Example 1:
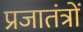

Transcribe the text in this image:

प्रजातंत्रों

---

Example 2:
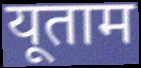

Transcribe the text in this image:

यूताम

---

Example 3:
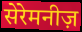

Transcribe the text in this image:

सेरेमनीज़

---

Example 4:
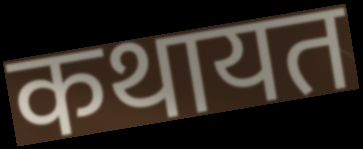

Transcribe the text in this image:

कथायत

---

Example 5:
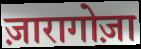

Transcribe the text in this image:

ज़ारागोज़ा